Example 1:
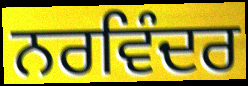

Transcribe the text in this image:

ਨਰਵਿੰਦਰ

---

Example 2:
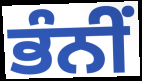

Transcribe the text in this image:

ਭੰਨੀਂ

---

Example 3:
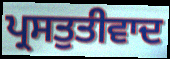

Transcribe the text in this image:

ਪ੍ਰਸਤੁਤੀਵਾਦ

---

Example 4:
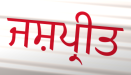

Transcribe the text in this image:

ਜਸ਼ਪ੍ਰੀਤ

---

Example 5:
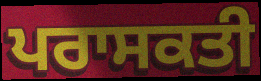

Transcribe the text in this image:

ਪਰਾਸਕਤੀ